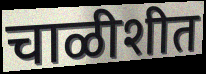
चाळीशीत